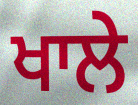
ਖਾਲੇ